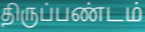
திருப்பண்டம்